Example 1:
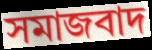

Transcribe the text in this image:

সমাজবাদ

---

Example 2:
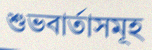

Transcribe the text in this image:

শুভবাৰ্তাসমূহ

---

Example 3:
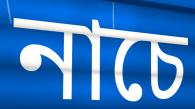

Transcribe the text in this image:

নাচে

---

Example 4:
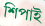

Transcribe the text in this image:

শিপাই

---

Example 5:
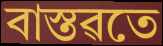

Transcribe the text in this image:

বাস্তৱতে